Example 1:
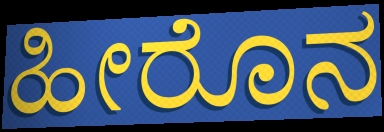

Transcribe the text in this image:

ಹೀರೊನ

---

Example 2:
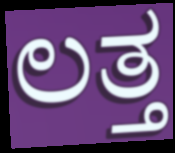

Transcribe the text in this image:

ಲತ್ತ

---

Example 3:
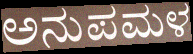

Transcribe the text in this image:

ಅನುಪಮಳ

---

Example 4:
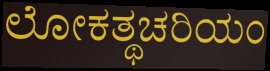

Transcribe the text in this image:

ಲೋಕತ್ಥಚರಿಯಂ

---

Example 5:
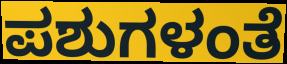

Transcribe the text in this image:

ಪಶುಗಳಂತೆ